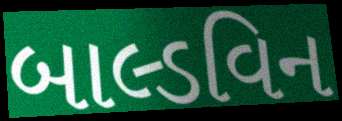
બાલ્ડવિન